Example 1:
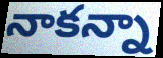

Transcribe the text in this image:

నాకన్నా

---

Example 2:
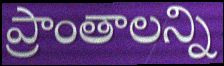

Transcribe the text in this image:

ప్రాంతాలన్ని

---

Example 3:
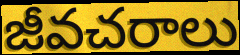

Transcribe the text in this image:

జీవచరాలు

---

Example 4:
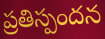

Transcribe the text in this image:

ప్రతిస్పందన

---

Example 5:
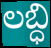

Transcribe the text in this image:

లబ్ధి